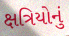
ક્ષત્રિયોનું